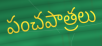
పంచపాత్రలు